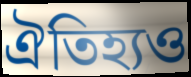
ঐতিহ্যও